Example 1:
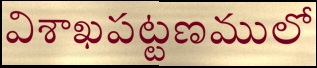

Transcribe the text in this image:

విశాఖపట్టణములో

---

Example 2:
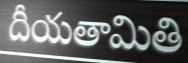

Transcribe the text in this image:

దీయతామితి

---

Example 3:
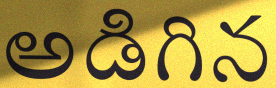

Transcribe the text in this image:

అడిగిన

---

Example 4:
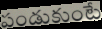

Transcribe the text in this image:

పండుకుంటే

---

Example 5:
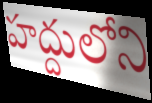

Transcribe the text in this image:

హద్దులోని